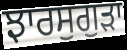
ਝਾਰਸੁਗੁੜਾ